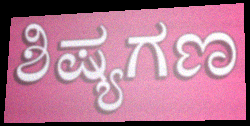
ಶಿಷ್ಯಗಣ